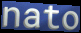
nato